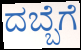
ದಬ್ಬೆಗೆ